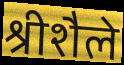
श्रीशैले